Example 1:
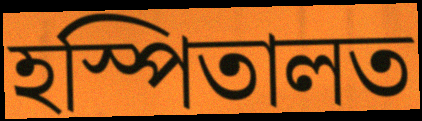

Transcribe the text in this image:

হস্পিতালত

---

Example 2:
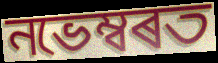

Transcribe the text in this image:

নভেম্বৰত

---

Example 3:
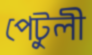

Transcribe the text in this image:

পেটুলী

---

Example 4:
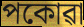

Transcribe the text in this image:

পকোৱা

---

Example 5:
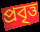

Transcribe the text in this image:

প্ৰবৃত্ত